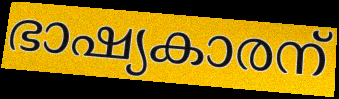
ഭാഷ്യകാരന്